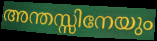
അന്തസ്സിനേയും